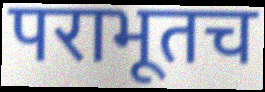
पराभूतच